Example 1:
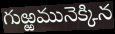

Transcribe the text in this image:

గుఱ్ఱమునెక్కిన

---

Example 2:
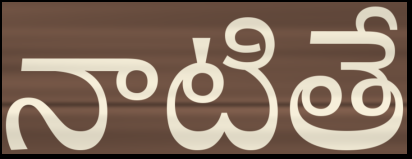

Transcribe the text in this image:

నాటితే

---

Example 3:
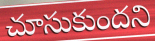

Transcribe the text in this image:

చూసుకుందని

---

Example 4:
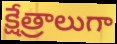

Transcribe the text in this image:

క్షేత్రాలుగా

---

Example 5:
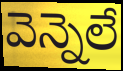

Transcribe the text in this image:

వెన్నెలే